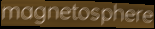
magnetosphere